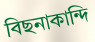
বিছনাকান্দি